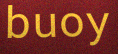
buoy